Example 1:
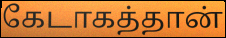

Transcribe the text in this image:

கேடாகத்தான்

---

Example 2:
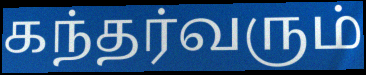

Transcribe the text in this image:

கந்தர்வரும்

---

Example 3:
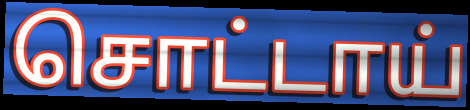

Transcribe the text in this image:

சொட்டாய்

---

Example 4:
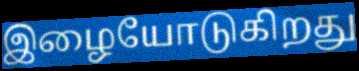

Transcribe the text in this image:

இழையோடுகிறது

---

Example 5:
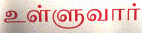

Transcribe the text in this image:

உள்ளுவார்